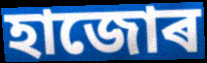
হাজোৰ